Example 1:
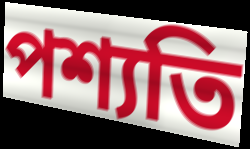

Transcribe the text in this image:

পশ্যতি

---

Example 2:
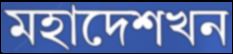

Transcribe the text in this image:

মহাদেশখন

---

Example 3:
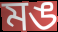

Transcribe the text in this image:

মঙ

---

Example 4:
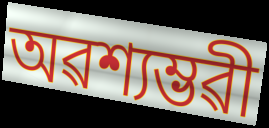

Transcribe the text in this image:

অৱশ্যম্ভৱী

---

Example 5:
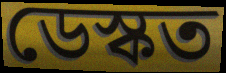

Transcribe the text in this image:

ডেস্কত